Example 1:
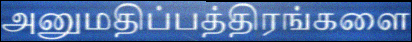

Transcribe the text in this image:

அனுமதிப்பத்திரங்களை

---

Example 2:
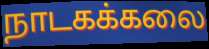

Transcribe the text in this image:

நாடகக்கலை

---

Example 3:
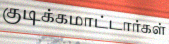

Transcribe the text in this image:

குடிக்கமாட்டார்கள்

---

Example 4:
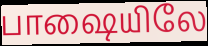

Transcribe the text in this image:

பாஷையிலே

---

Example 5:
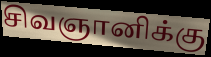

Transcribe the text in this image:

சிவஞானிக்கு